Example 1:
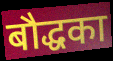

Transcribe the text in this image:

बौद्धका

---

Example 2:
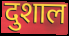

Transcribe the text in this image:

दुशाल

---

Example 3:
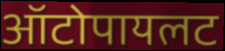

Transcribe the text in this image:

ऑटोपायलट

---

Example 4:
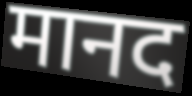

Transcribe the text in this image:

मानद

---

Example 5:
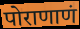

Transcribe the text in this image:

पोराणाणं